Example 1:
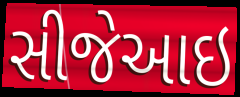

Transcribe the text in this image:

સીજેઆઇ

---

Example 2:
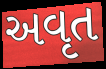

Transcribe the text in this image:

અવૃત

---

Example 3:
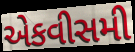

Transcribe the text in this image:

એકવીસમી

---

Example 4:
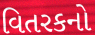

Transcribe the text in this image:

વિતરકનો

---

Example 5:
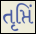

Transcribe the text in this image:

તૃપ્તિં